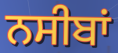
ਨਸੀਬਾਂ